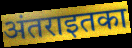
अंतराइतका